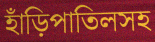
হাঁড়িপাতিলসহ